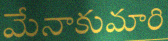
మేనాకుమారి